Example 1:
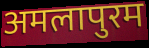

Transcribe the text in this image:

अमलापुरम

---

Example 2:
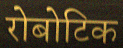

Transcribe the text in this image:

रोबोटिक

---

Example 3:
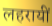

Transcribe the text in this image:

लहरायीं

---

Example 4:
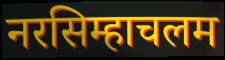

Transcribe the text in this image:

नरसिम्हाचलम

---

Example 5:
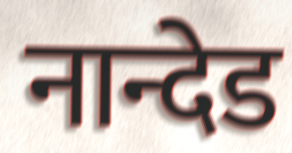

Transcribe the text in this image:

नान्देड